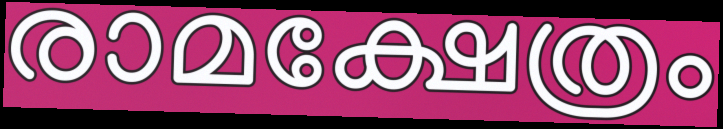
രാമക്ഷേത്രം